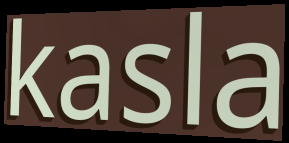
kasla